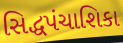
સિદ્ધપંચાશિકા